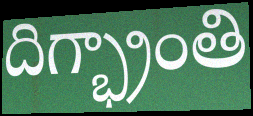
దిగ్భ్రాంతి